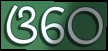
ଓଠେ